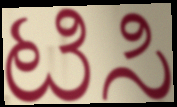
ಟಿಸಿ